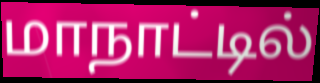
மாநாட்டில்